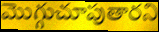
మొగ్గుచూపుతారని